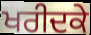
ਖਰੀਦਕੇ